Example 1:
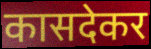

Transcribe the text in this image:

कासदेकर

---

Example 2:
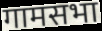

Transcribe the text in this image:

गामसभा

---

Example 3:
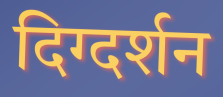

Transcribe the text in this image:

दिग्दर्शन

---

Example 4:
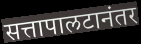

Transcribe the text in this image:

सत्तापालटानंतर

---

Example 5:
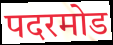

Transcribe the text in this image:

पदरमोड